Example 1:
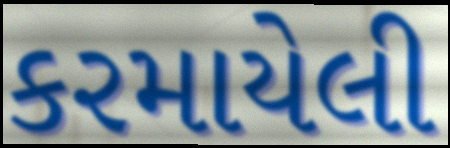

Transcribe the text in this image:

કરમાયેલી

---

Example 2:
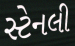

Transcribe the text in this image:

સ્ટેનલી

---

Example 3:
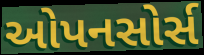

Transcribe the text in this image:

ઓપનસોર્સ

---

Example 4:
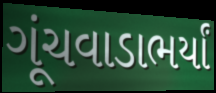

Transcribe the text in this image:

ગૂંચવાડાભર્યાં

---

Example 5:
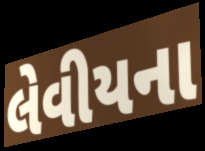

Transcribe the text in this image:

લેવીયના